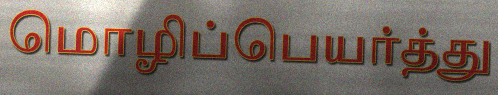
மொழிப்பெயர்த்து